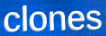
clones